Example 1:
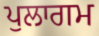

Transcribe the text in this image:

ਪੁਲਾਗਮ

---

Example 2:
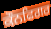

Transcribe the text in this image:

ਕੌਨਫਿਗਰ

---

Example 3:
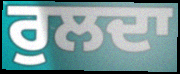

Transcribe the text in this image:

ਰੁਲਦਾ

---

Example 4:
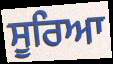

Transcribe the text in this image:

ਸੂਰਿਆ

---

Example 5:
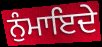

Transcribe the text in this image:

ਨੁੰਮਾਇਦੇ